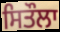
ਸਿਤੌਲਾ